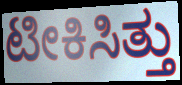
ಟೀಕಿಸಿತ್ತು